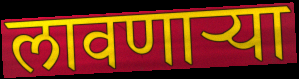
लावणाऱ्या